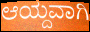
ಆಯ್ದವಾಗಿ